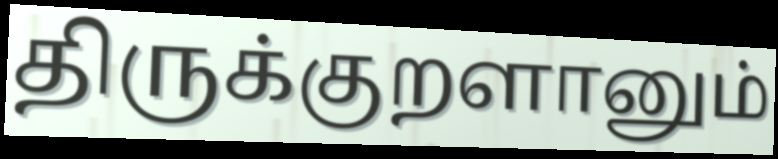
திருக்குறளானும்